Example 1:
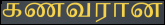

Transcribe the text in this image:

கணவரான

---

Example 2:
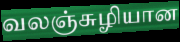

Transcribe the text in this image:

வலஞ்சுழியான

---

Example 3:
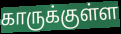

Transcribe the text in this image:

காருக்குள்ள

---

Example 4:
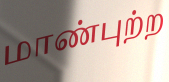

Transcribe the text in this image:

மாண்புற்ற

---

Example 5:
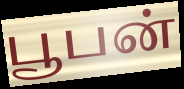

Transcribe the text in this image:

பூபன்